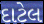
દાટેલ